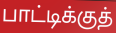
பாட்டிக்குத்